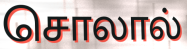
சொலால்